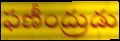
ఫణీంద్రుడు